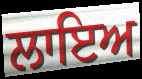
ਲਾਇਅ